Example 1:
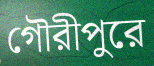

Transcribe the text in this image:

গৌরীপুরে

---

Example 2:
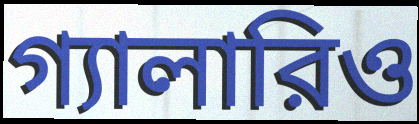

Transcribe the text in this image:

গ্যালারিও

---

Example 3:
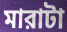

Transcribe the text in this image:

মারাটা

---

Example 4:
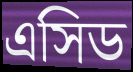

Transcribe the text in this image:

এসিড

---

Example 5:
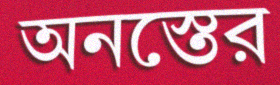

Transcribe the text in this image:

অনস্তের